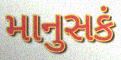
માનુસકં